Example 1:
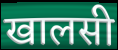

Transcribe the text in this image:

खालसी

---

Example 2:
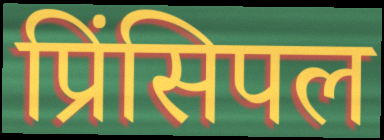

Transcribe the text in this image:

प्रिंसिपल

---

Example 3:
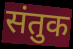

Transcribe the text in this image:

संतुक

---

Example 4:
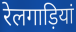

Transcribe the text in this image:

रेलगाड़ियां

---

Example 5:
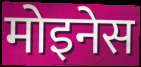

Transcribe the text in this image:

मोइनेस